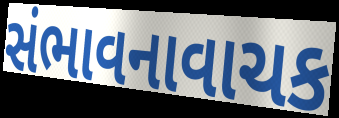
સંભાવનાવાચક